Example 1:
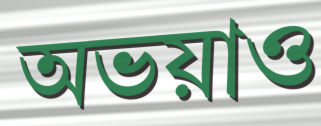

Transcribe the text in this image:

অভয়াও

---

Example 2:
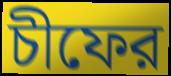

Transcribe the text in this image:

চীফের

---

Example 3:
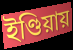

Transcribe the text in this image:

ইণ্ডিয়ায়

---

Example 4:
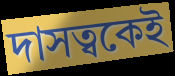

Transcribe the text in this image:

দাসত্বকেই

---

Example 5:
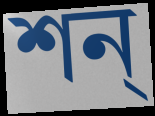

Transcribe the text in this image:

শন্